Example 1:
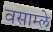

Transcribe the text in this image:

वसाम्ले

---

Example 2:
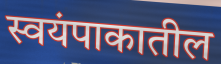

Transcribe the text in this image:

स्वयंपाकातील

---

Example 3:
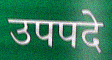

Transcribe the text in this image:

उपपदे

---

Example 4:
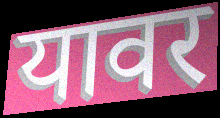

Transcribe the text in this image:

यावर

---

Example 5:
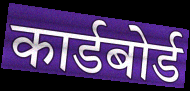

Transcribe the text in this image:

कार्डबोर्ड